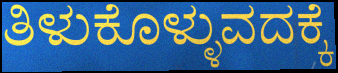
ತಿಳುಕೊಳ್ಳುವದಕ್ಕೆ